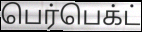
பெர்பெக்ட்